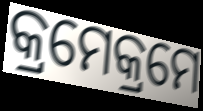
କ୍ରମେକ୍ରମେ